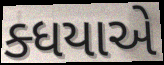
ક્ધયાએ